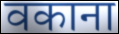
वकाना